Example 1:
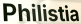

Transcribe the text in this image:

Philistia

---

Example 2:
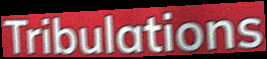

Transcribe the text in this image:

Tribulations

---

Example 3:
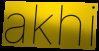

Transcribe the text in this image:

akhi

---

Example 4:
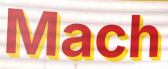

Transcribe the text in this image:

Mach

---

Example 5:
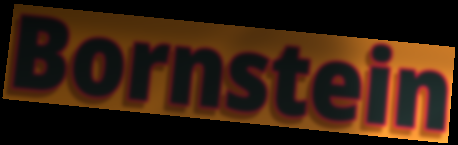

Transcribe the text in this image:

Bornstein